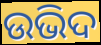
ଉଭିଦ